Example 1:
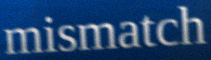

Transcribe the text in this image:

mismatch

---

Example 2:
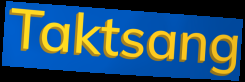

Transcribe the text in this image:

Taktsang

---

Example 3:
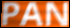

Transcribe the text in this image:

PAN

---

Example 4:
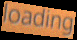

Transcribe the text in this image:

loading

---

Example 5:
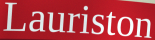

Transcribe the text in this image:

Lauriston